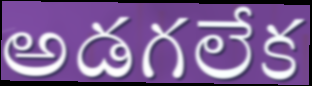
అడగలేక